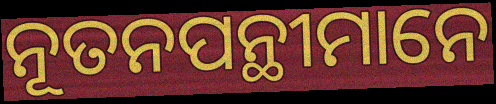
ନୂତନପନ୍ଥୀମାନେ